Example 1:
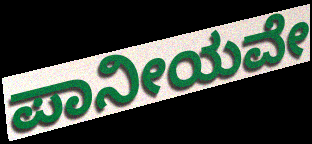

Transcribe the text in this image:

ಪಾನೀಯವೇ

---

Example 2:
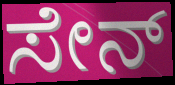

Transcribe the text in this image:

ಸೇನ್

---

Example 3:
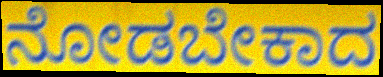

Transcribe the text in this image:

ನೋಡಬೇಕಾದ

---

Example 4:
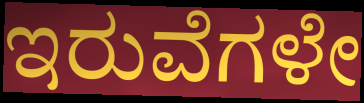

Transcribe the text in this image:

ಇರುವೆಗಳೇ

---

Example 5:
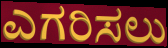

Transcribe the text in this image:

ಎಗರಿಸಲು